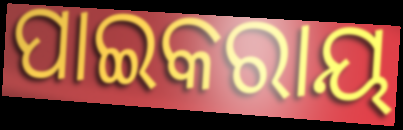
ପାଇକରାୟ